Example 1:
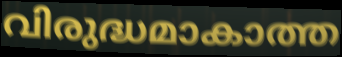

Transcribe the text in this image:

വിരുദ്ധമാകാത്ത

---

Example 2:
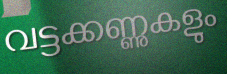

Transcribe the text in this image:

വട്ടക്കണ്ണുകളും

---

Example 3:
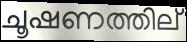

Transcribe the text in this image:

ചൂഷണത്തില്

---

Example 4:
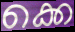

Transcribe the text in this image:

ക്കെ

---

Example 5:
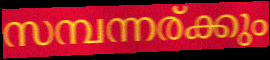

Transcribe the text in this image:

സമ്പന്നര്ക്കും